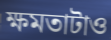
ক্ষমতাটাও